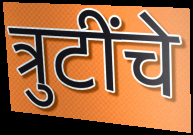
त्रुटींचे